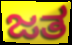
ಜತ